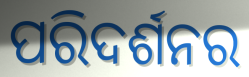
ପରିଦର୍ଶନର